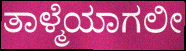
ತಾಳ್ಮೆಯಾಗಲೀ